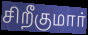
சிறீகுமார்